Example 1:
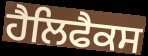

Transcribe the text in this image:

ਹੈਲਿਫੈਕਸ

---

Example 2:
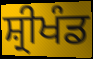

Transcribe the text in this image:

ਸ਼੍ਰੀਖੰਡ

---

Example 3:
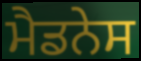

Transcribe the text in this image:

ਮੈਡਨੇਸ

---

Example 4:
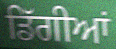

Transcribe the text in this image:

ਡਿੱਗੀਆਂ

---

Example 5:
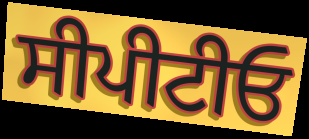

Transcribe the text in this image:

ਸੀਪੀਟੀਓ